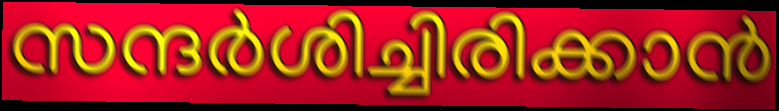
സന്ദർശിച്ചിരിക്കാൻ